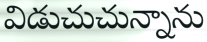
విడుచుచున్నాను